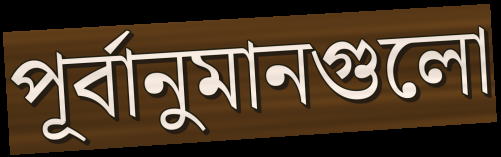
পূর্বানুমানগুলো